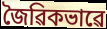
জৈৱিকভাৱে